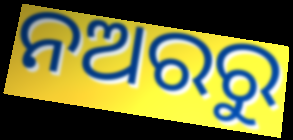
ନଅରରୁ